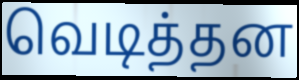
வெடித்தன